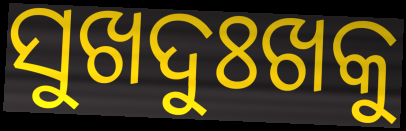
ସୁଖଦୁଃଖକୁ